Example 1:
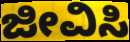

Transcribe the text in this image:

ಜೀವಿಸಿ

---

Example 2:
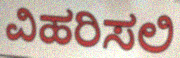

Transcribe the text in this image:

ವಿಹರಿಸಲಿ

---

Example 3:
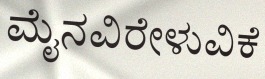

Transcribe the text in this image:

ಮೈನವಿರೇಳುವಿಕೆ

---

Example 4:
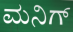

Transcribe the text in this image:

ಮನಿಗ್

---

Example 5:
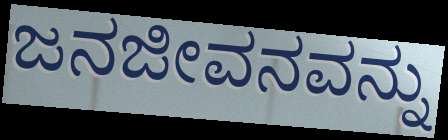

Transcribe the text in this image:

ಜನಜೀವನವನ್ನು